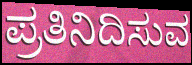
ಪ್ರತಿನಿದಿಸುವ